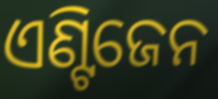
ଏଣ୍ଟିଜେନ